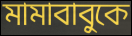
মামাবাবুকে